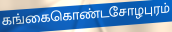
கங்கைகொண்டசோழபுரம்